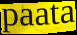
paata